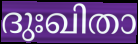
ദുഃഖിതാ